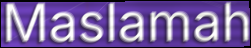
Maslamah